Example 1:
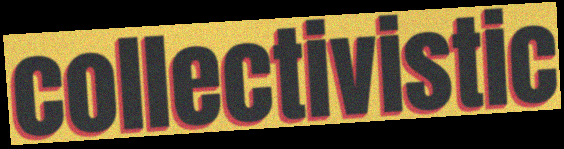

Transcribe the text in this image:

collectivistic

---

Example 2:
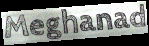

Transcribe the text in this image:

Meghanad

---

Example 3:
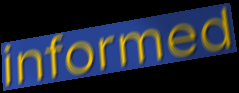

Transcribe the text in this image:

informed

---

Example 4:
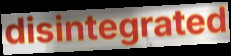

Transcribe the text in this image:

disintegrated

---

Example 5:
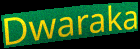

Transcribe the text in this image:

Dwaraka